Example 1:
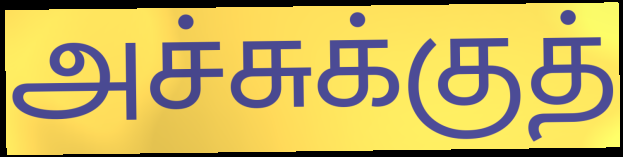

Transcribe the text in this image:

அச்சுக்குத்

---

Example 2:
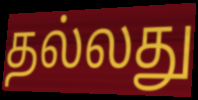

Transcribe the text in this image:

தல்லது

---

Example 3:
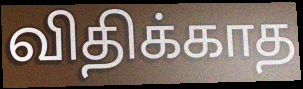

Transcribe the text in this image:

விதிக்காத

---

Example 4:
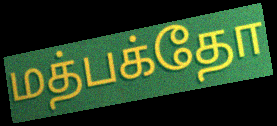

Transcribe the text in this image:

மத்பக்தோ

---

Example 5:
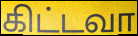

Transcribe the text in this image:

கிட்டவா